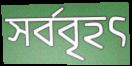
সৰ্ববৃহৎ